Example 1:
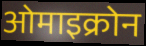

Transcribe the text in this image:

ओमाइक्रोन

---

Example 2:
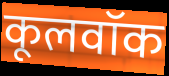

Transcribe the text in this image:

कूलवॉक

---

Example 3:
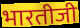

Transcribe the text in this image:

भारतीजी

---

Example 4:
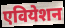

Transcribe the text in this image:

एवियेशन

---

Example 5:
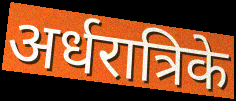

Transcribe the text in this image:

अर्धरात्रिके